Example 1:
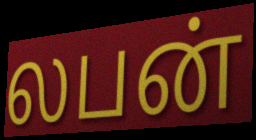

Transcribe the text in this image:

லபன்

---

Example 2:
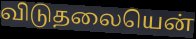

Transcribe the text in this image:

விடுதலையென்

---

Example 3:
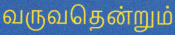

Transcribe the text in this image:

வருவதென்றும்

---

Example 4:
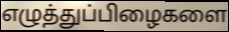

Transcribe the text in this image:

எழுத்துப்பிழைகளை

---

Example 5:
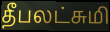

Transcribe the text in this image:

தீபலட்சுமி